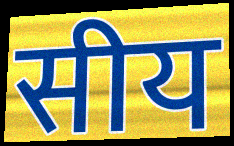
सीय